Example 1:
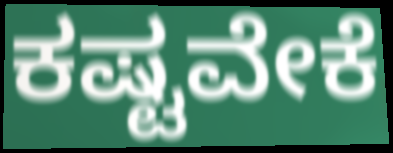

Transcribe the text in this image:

ಕಷ್ಟವೇಕೆ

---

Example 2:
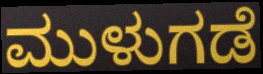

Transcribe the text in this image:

ಮುಳುಗಡೆ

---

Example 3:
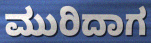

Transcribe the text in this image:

ಮುರಿದಾಗ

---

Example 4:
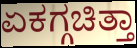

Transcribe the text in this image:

ಏಕಗ್ಗಚಿತ್ತಾ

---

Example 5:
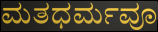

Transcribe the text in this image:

ಮತಧರ್ಮವೂ